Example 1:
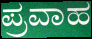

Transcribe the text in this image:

ಪ್ರವಾಹ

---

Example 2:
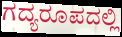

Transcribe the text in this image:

ಗದ್ಯರೂಪದಲ್ಲಿ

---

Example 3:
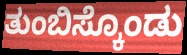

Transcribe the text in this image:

ತುಂಬಿಸ್ಕೊಂಡು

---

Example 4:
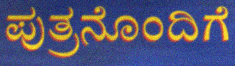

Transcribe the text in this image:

ಪುತ್ರನೊಂದಿಗೆ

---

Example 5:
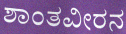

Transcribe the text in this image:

ಶಾಂತವೀರನ